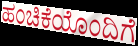
ಹಂಚಿಕೆಯೊಂದಿಗೆ